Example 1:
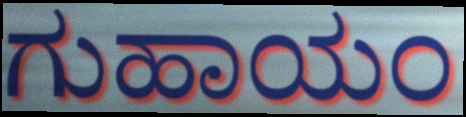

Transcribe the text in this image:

ಗುಹಾಯಂ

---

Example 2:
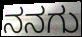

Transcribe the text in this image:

ನನಗು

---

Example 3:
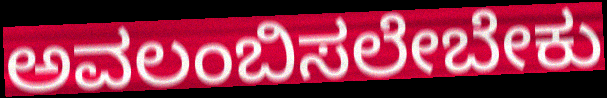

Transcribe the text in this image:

ಅವಲಂಬಿಸಲೇಬೇಕು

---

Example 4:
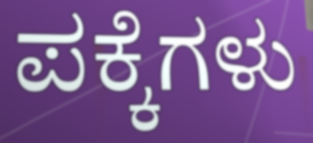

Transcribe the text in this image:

ಪಕ್ಕೆಗಳು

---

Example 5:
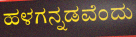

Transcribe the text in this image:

ಹಳಗನ್ನಡವೆಂದು